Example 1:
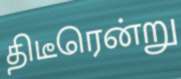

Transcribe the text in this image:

திடீரென்று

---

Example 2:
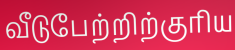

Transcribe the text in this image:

வீடுபேற்றிற்குரிய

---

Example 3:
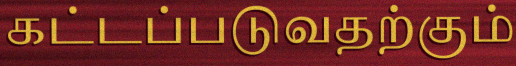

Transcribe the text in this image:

கட்டப்படுவதற்கும்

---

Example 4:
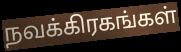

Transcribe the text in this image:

நவக்கிரகங்கள்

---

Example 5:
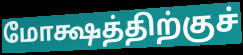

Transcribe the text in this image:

மோக்ஷத்திற்குச்